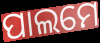
ପାଲମେ